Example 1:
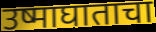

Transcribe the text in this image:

उष्माघाताचा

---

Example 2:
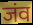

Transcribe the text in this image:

जंव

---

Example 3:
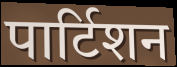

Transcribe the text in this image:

पार्टिशन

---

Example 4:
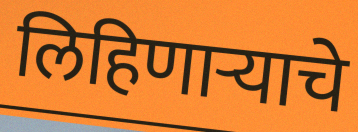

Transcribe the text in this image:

लिहिणाऱ्याचे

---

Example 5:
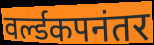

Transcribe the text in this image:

वर्ल्डकपनंतर